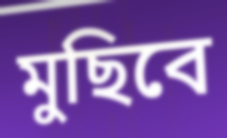
মুছিবে